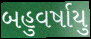
બહુવર્ષાયુ